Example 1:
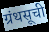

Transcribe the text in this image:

ग्रंथसूची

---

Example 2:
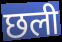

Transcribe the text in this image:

छली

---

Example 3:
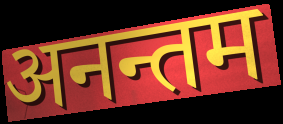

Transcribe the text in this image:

अनन्तम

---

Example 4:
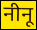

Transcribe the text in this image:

नीनू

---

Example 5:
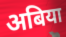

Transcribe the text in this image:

अबिया